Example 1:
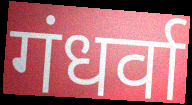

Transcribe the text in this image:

गंधर्वा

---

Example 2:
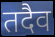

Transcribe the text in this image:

तदैव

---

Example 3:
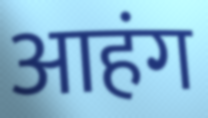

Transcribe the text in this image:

आहंग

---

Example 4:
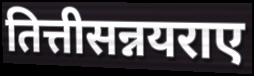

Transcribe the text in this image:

तित्तीसन्नयराए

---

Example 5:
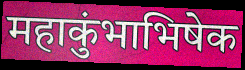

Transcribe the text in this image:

महाकुंभाभिषेक